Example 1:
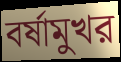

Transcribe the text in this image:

বর্ষামুখর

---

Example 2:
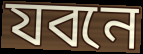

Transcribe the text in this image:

যবনে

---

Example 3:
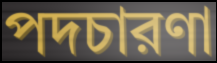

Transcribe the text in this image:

পদচারণা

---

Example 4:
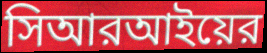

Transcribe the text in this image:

সিআরআইয়ের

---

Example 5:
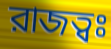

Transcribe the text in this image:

রাজত্বঃ